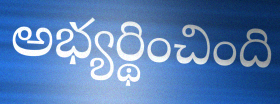
అభ్యర్థించింది